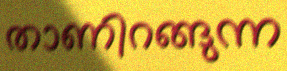
താണിറങ്ങുന്ന